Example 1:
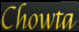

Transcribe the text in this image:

Chowta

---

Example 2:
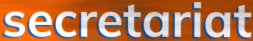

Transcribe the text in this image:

secretariat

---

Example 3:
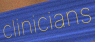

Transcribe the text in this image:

clinicians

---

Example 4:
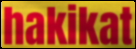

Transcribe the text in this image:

hakikat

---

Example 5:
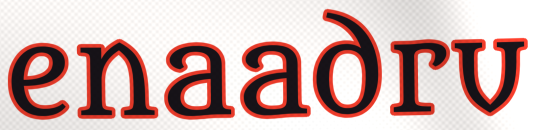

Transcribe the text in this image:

enaadru